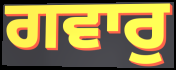
ਗਵਾਰੁ